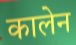
कालेन